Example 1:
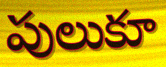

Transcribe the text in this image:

పులుకూ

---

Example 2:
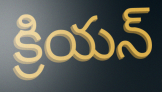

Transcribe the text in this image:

క్రియన్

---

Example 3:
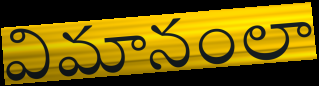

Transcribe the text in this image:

విమానంలా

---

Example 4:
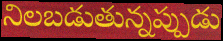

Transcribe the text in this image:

నిలబడుతున్నప్పుడు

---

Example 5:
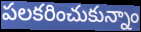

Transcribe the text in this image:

పలకరించుకున్నాం